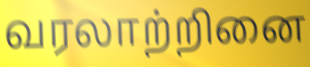
வரலாற்றினை